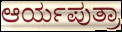
ಆರ್ಯಪುತ್ರಾ